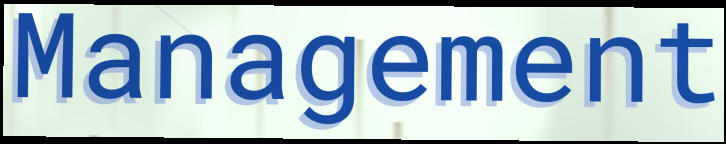
Management